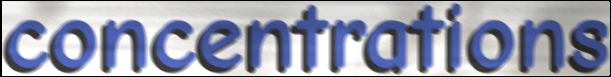
concentrations